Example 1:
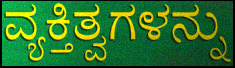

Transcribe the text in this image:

ವ್ಯಕ್ತಿತ್ವಗಳನ್ನು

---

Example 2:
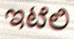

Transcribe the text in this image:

ಇಟೆಲಿ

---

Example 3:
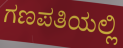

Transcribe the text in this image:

ಗಣಪತಿಯಲ್ಲಿ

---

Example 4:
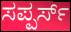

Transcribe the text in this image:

ಸಪ್ಪರ್ಸ್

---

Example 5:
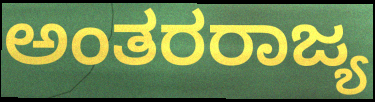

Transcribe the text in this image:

ಅಂತರರಾಜ್ಯ